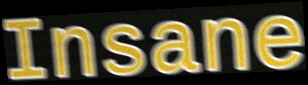
Insane